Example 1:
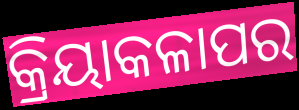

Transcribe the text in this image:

କ୍ରିୟାକଳାପର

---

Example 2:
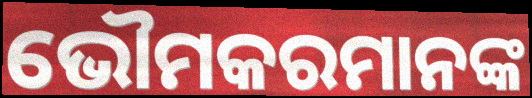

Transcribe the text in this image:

ଭୌମକରମାନଙ୍କ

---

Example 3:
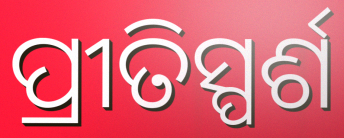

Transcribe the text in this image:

ପ୍ରୀତିସ୍ପର୍ଶ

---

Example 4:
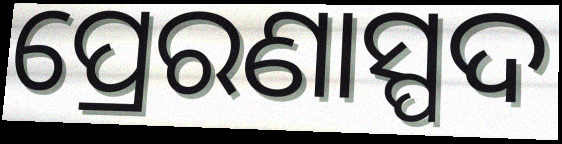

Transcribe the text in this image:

ପ୍ରେରଣାସ୍ପଦ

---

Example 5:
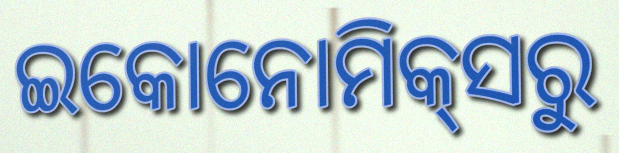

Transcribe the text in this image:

ଇକୋନୋମିକ୍‌ସରୁ